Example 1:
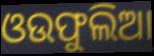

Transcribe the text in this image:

ଓଉଫୁଲିଆ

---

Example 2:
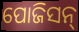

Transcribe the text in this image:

ପୋଜିସନ୍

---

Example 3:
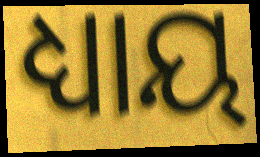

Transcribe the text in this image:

ଧ୍ୟାୟ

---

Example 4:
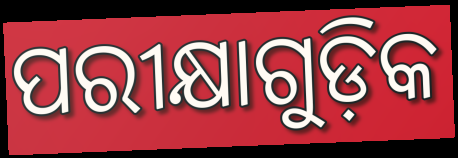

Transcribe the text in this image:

ପରୀକ୍ଷାଗୁଡ଼ିକ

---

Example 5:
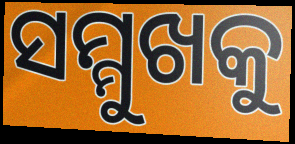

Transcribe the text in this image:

ସମ୍ମୁଖକୁ